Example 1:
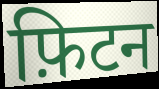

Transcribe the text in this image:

फ़िटन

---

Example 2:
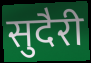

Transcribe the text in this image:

सुदैरी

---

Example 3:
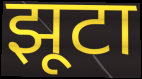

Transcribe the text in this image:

झूटा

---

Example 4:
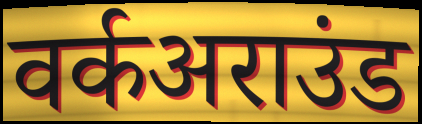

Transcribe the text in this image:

वर्कअराउंड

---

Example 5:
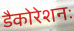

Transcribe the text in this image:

डैकोरेशनः